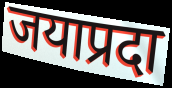
जयाप्रदा